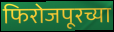
फिरोजपूरच्या